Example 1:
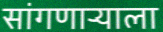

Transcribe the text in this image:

सांगणार्‍याला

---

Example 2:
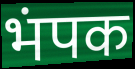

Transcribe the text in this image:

भंपक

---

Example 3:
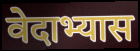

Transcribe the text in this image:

वेदाभ्यास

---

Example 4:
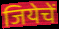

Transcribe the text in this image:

जियेचें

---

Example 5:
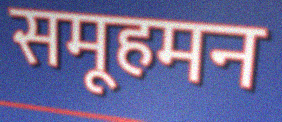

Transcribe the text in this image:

समूहमन